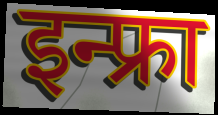
इन्फ्रा